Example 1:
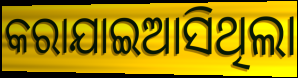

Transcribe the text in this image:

କରାଯାଇଆସିଥିଲା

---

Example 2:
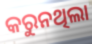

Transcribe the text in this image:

କରୁନଥିଲା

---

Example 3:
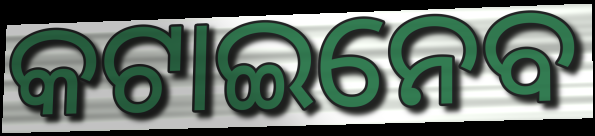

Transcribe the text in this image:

କଟାଇନେବ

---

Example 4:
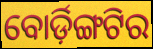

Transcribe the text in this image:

ବୋର୍ଡ଼ିଙ୍ଗଟିର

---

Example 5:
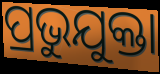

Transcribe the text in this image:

ପ୍ରଭୁଯୁକ୍ତା